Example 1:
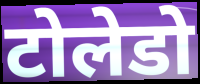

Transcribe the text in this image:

टोलेडो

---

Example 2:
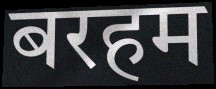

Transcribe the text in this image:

बरहम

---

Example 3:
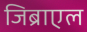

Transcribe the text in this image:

जिब्राएल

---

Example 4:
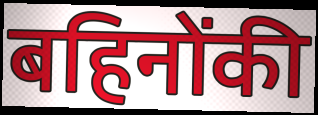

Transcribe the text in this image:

बहिनोंकी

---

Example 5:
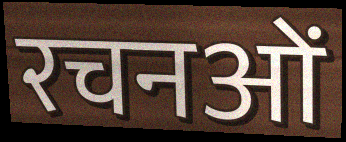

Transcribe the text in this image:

रचनओं